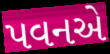
પવનએ